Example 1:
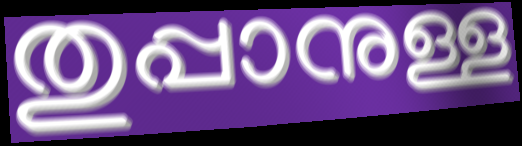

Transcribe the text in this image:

തുപ്പാനുള്ള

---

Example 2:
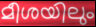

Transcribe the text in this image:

മീശയിലും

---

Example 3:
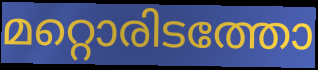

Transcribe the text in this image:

മറ്റൊരിടത്തോ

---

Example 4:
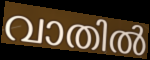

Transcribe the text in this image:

വാതിൽ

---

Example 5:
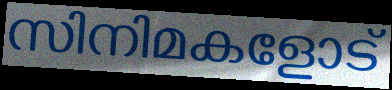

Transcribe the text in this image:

സിനിമകളോട്